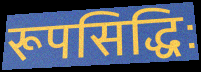
रूपसिद्धिः